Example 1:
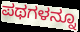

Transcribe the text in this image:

ಪಥಗಳನ್ನೂ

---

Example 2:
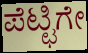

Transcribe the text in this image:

ಪೆಟ್ಟಿಗೇ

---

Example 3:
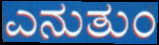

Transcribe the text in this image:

ಎನುತುಂ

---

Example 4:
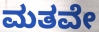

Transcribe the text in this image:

ಮತವೇ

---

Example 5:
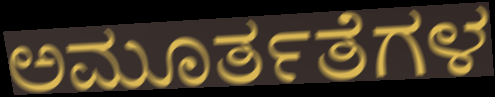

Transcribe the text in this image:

ಅಮೂರ್ತತೆಗಳ